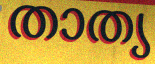
താത്യ